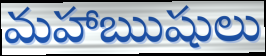
మహాఋషులు